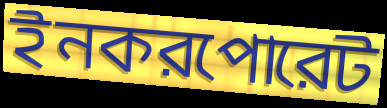
ইনকরপোরেট